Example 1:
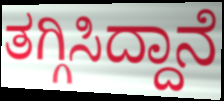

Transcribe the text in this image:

ತಗ್ಗಿಸಿದ್ದಾನೆ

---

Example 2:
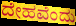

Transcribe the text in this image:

ದೇಹವೆಂದು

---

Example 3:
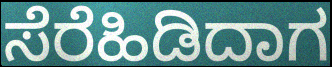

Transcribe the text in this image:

ಸೆರೆಹಿಡಿದಾಗ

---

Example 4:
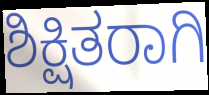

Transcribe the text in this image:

ಶಿಕ್ಷಿತರಾಗಿ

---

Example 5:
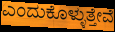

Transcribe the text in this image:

ಎಂದುಕೊಳ್ಳುತ್ತೇವೆ